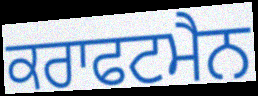
ਕਰਾਫਟਮੈਨ